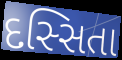
દસ્સિતા